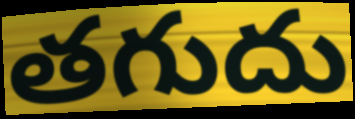
తగుదు